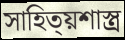
সাহিত্য়শাস্ত্ৰ